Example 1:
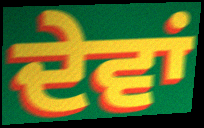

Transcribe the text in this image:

ਦੇਵਾਂ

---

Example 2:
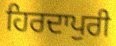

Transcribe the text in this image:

ਹਿਰਦਾਪੁਰੀ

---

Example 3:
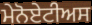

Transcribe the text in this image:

ਮੇਨੋਏਟੀਅਸ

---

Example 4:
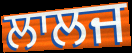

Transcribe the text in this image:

ਲਾਲਜ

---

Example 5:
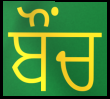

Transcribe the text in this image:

ਬੌਂਚ